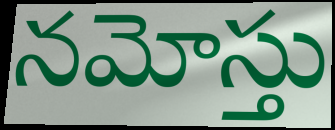
నమోస్తు